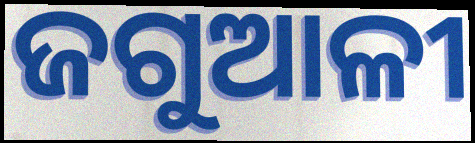
ଜଗୁଆଳୀ